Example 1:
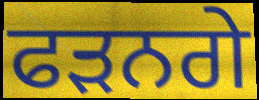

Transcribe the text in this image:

ਫੜਨਗੇ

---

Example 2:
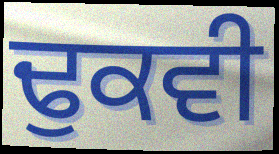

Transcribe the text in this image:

ਢੁਕਵੀ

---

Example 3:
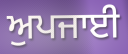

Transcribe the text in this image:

ਅੁਪਜਾਈ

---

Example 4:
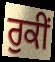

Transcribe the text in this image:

ਰੁਕੀਂ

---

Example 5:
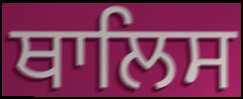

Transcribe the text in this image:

ਥਾਲਿਸ